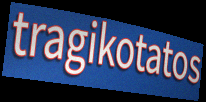
tragikotatos